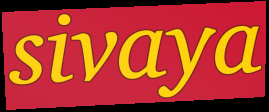
sivaya